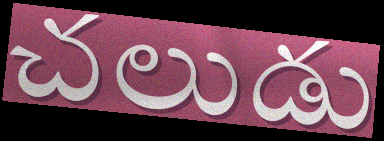
చలుడు